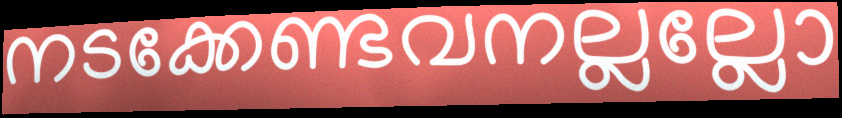
നടക്കേണ്ടവനല്ലല്ലോ